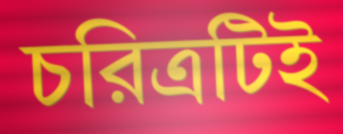
চরিত্রটিই